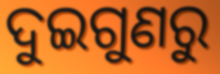
ଦୁଇଗୁଣରୁ